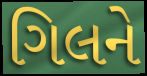
ગિલને